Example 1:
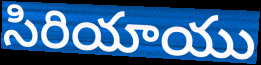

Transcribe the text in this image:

సిరియాయు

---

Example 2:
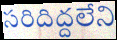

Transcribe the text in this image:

సరిదిద్దలేని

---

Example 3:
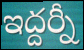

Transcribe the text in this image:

ఇద్దర్నీ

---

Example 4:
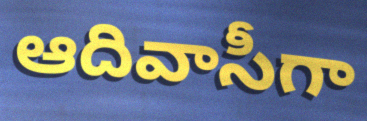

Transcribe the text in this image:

ఆదివాసీగా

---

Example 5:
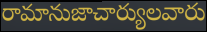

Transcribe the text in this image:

రామానుజాచార్యులవారు